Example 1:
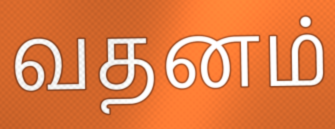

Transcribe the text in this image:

வதனம்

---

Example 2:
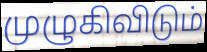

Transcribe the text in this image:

முழுகிவிடும்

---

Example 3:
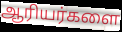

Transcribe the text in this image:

ஆரியர்களை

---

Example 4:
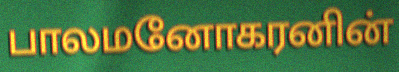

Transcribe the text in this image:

பாலமனோகரனின்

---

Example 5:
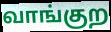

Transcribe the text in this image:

வாங்குற